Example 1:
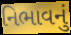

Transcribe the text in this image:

નિભાવનું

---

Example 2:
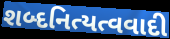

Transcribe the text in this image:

શબ્દનિત્યત્વવાદી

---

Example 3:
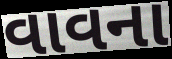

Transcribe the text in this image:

વાવના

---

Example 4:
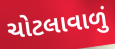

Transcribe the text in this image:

ચોટલાવાળું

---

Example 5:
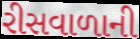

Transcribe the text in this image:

રીસવાળાની